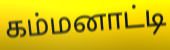
கம்மனாட்டி